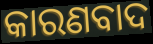
କାରଣବାଦ